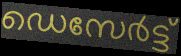
ഡെസേർട്ട്